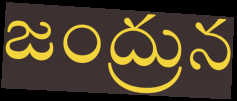
జంద్రున